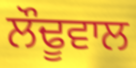
ਲੌਢੂਵਾਲ